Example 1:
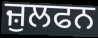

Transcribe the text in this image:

ਜ਼ੁਲਫਨ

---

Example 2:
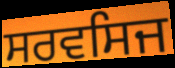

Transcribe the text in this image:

ਸਰਵਸਿਜ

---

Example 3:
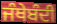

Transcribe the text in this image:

ਜੰਥੇਬੰਦੀ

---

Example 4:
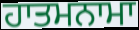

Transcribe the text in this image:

ਹਾਤਮਨਾਮਾ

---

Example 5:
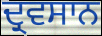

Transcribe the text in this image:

ਦ੍ਰਵਸਾਨ